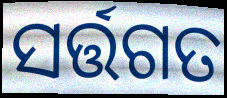
ସର୍ତ୍ତଗତ